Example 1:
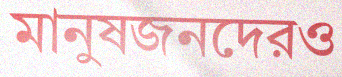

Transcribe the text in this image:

মানুষজনদেরও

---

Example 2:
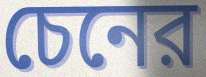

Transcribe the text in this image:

চেনের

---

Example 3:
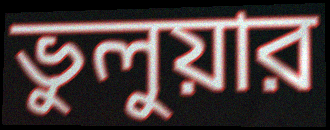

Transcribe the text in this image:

ভুলুয়ার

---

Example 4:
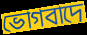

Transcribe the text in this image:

ভোগবাদে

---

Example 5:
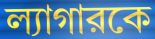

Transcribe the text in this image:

ল্যাগারকে